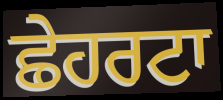
ਛੇਹਰਟਾ